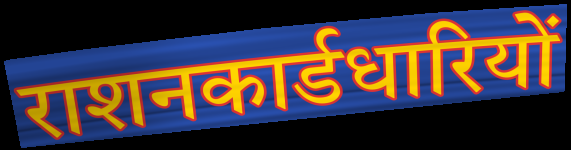
राशनकार्डधारियों